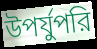
উপর্যুপরি